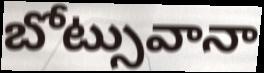
బోట్సువానా